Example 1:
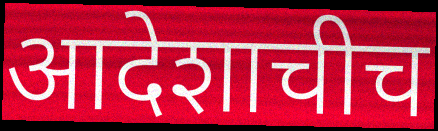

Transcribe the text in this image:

आदेशाचीच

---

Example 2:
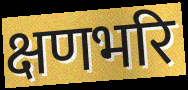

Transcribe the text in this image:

क्षणभरि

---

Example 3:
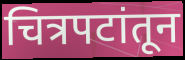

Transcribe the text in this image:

चित्रपटांतून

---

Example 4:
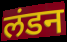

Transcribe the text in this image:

लंडन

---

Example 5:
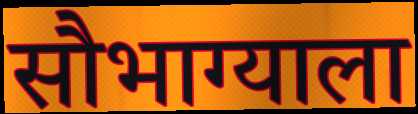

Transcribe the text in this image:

सौभाग्याला